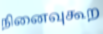
நினைவுகூற